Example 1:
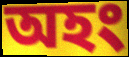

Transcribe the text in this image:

অহং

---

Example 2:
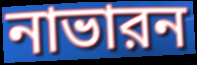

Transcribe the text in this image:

নাভারন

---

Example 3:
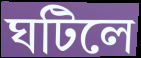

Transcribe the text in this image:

ঘটিলে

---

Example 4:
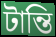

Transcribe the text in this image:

টান্তি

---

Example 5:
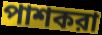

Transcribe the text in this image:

পাশকরা